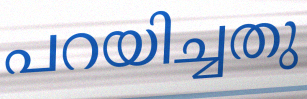
പറയിച്ചതു